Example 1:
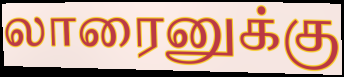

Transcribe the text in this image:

லாரைனுக்கு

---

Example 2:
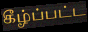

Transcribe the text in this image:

கீழ்ப்பட்ட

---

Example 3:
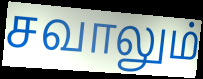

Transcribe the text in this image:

சவாலும்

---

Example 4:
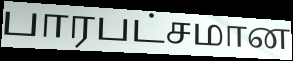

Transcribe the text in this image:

பாரபட்சமான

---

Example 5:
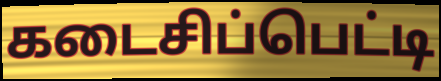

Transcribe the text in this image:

கடைசிப்பெட்டி